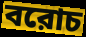
বরোচ